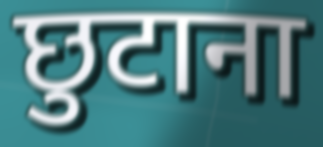
छुटाना